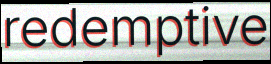
redemptive